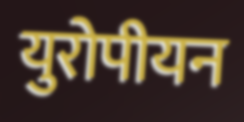
युरोपीयन